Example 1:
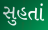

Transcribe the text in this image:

સુહતાં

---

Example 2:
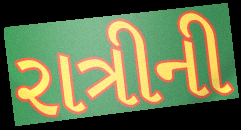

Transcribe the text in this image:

રાત્રીની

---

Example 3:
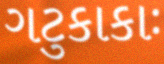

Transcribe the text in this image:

ગટુકાકાઃ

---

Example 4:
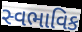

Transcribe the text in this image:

સ્વભાવિક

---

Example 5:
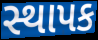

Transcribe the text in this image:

સ્થાપક